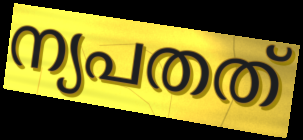
ന്യപതത്